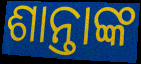
ଶାନ୍ତାଙ୍କ